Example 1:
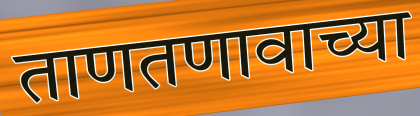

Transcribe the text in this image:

ताणतणावाच्या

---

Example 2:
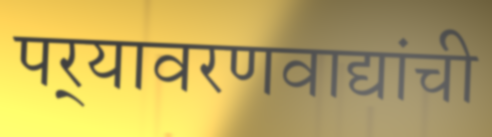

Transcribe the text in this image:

पर्यावरणवाद्यांची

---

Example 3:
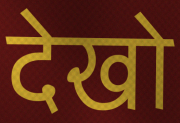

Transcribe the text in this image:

देखो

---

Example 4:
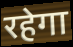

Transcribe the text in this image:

रहेगा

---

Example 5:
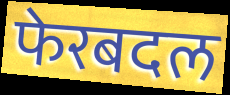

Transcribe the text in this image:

फेरबदल